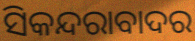
ସିକନ୍ଦରାବାଦର